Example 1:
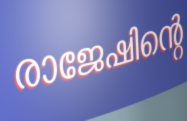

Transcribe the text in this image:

രാജേഷിന്റെ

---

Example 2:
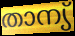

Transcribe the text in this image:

താന്യ്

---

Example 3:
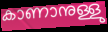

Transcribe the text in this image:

കാണാനുള്ളു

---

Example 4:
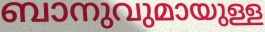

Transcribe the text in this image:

ബാനുവുമായുള്ള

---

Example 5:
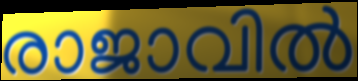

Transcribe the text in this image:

രാജാവിൽ